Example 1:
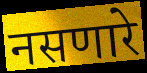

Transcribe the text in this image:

नसणारे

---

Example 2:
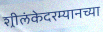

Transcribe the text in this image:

श्रीलंकेदरम्यानच्या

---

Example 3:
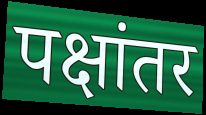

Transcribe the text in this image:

पक्षांतर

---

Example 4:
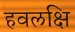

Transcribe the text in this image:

हवलक्षि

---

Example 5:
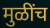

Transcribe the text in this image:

मुळींच